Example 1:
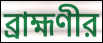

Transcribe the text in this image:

ব্রাহ্মণীর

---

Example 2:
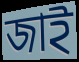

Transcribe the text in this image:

জাই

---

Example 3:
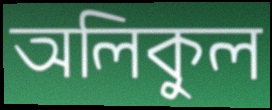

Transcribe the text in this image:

অলিকুল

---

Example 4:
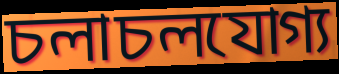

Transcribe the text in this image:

চলাচলযোগ্য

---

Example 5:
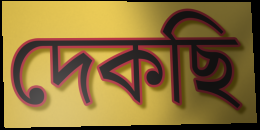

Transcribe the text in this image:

দেকছি